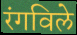
रंगविले